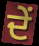
ਦੇਂ